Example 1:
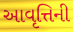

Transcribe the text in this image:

આવૃત્તિની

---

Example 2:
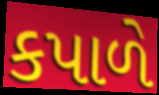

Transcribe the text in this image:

કપાળે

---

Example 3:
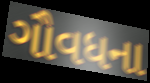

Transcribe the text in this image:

ગૌવધના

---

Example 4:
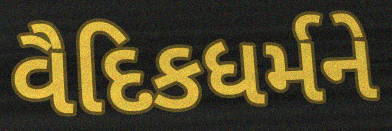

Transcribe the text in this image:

વૈદિકધર્મને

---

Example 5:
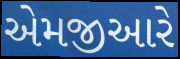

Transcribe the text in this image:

એમજીઆરે